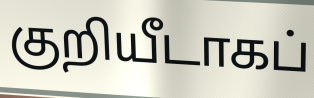
குறியீடாகப்